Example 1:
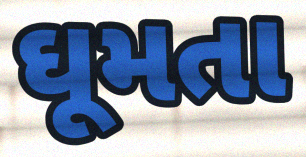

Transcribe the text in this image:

ઘૂમતા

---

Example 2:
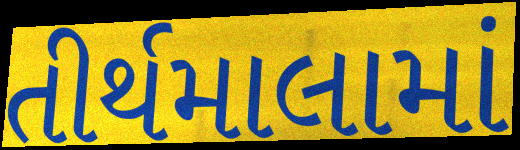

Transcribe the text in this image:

તીર્થમાલામાં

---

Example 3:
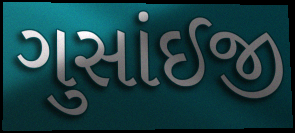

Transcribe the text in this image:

ગુસાંઈજી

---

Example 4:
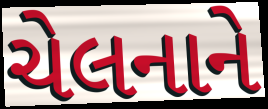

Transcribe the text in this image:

ચેલનાને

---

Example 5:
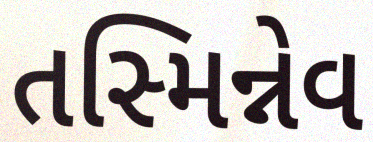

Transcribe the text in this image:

તસ્મિન્નેવ